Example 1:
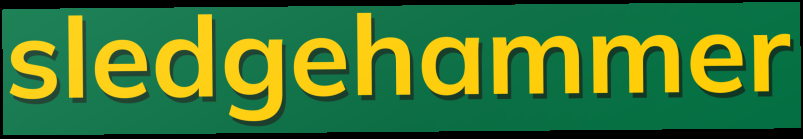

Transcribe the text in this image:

sledgehammer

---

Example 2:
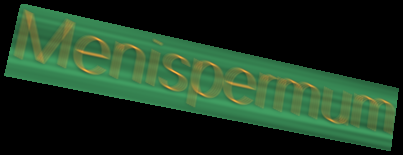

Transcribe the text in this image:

Menispermum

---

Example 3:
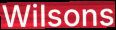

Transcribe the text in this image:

Wilsons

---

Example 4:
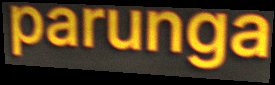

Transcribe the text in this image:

parunga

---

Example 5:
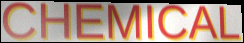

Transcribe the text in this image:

CHEMICAL